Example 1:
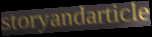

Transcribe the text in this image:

storyandarticle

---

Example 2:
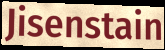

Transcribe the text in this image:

Jisenstain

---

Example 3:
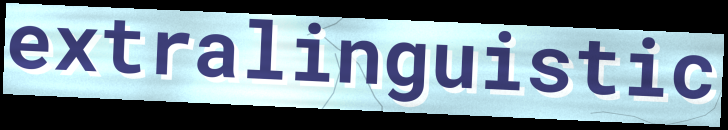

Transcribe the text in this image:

extralinguistic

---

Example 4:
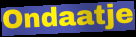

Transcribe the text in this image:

Ondaatje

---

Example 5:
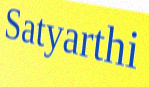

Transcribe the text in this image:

Satyarthi